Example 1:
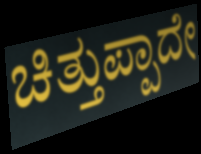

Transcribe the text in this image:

ಚಿತ್ತುಪ್ಪಾದೇ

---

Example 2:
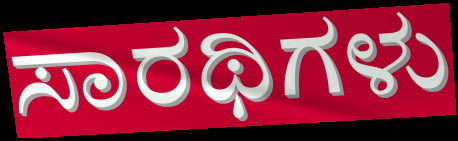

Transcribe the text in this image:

ಸಾರಥಿಗಳು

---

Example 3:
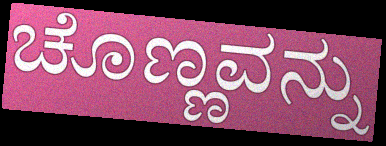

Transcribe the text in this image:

ಚೊಣ್ಣವನ್ನು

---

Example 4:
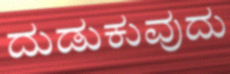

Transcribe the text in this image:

ದುಡುಕುವುದು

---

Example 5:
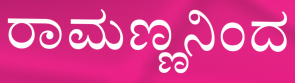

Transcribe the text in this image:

ರಾಮಣ್ಣನಿಂದ